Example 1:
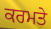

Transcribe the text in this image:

ਕਰਮਤੇ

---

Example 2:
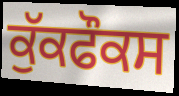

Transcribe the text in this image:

ਕੁੱਕਫੌਕਸ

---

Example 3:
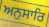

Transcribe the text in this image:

ਅਨੁਸਾਰਿ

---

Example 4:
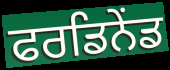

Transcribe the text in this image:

ਫਰਡਿਨੇਂਡ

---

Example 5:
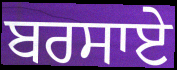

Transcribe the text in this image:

ਬਰਸਾਏ